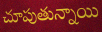
చూపుతున్నాయి